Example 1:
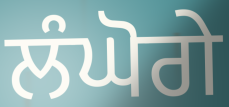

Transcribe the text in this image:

ਲੰਘੋਗੇ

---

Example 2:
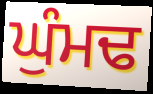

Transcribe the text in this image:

ਘੁੰਮਢ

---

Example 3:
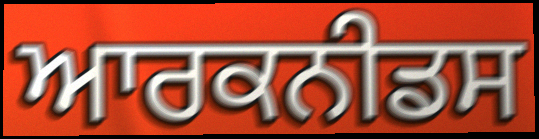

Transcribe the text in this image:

ਆਰਕਨੀਡਸ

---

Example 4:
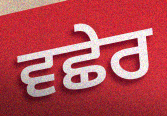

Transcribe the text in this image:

ਵਛੇਰ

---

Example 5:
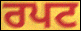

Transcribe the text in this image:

ਰਪਟ